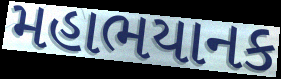
મહાભયાનક